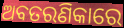
ଅବତରଣିକାରେ